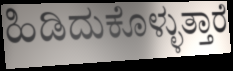
ಹಿಡಿದುಕೊಳ್ಳುತ್ತಾರೆ